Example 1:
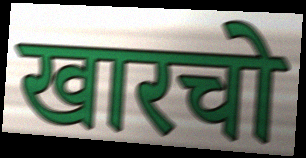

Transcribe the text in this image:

खारचो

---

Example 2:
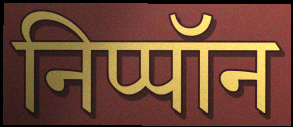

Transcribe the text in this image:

निप्पॉन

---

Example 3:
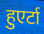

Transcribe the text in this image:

हुएर्टा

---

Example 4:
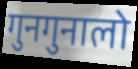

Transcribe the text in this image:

गुनगुनालो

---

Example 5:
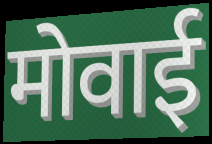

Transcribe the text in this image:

मोवाई